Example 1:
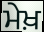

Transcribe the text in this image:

ਮੇਖ਼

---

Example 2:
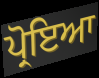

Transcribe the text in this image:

ਪ੍ਰੋਇਆ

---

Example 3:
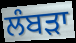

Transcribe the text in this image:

ਲੰਬੜਾ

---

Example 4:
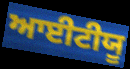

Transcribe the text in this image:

ਆਈਟੀਯੂ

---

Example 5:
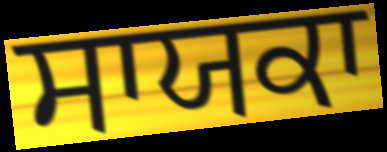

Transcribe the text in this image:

ਸਾਯਕਾ